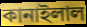
কানাইলাল